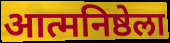
आत्मनिष्ठेला